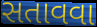
સતાવવા